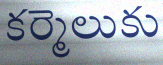
కర్మెలుకు